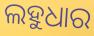
ଲହୁଧାର